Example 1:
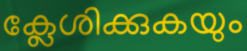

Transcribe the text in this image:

ക്ലേശിക്കുകയും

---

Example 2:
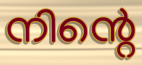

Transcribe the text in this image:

നിന്റെ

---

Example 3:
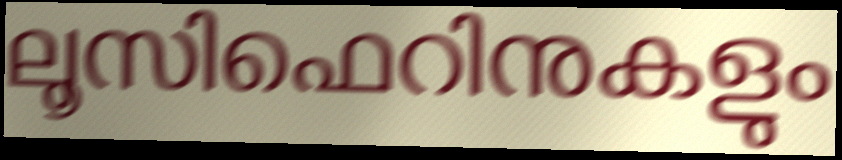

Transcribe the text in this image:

ലൂസിഫെറിനുകളും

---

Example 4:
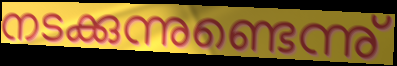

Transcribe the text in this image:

നടക്കുന്നുണ്ടെന്നു്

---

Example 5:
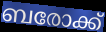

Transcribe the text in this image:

ബരോക്ക്